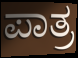
ಪಾತ್ರ